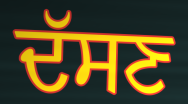
ਦੱਸਣ